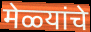
मेळ्यांचे